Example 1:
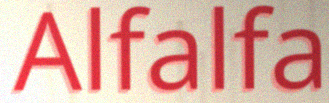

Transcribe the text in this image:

Alfalfa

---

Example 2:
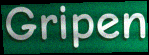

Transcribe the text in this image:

Gripen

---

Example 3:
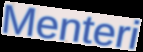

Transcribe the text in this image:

Menteri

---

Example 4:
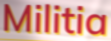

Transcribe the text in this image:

Militia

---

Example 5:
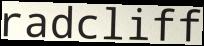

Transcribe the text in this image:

radcliff